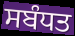
ਸਬੰਧਤ